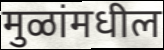
मुळांमधील